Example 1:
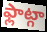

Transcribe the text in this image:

ఫ్లాట్గా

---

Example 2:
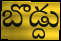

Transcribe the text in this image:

బొడ్దు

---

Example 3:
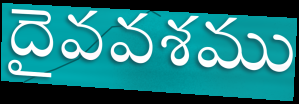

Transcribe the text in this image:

దైవవశము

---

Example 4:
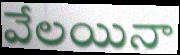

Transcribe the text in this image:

వేలయినా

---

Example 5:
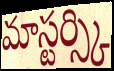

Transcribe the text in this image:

మాస్టర్స్కి